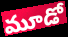
మూడో